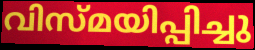
വിസ്മയിപ്പിച്ചു